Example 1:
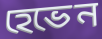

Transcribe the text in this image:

হেভেন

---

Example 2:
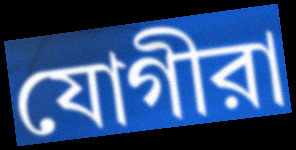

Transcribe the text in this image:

যোগীরা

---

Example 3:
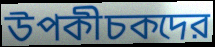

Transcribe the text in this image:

উপকীচকদের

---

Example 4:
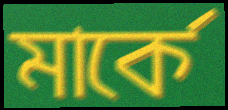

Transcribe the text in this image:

মার্কে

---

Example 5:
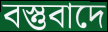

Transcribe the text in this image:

বস্তুবাদে